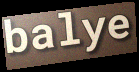
balye